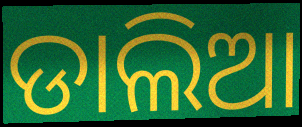
ଡାଲିଆ